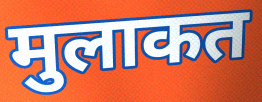
मुलाकत